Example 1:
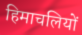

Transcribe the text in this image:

हिमाचलियों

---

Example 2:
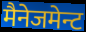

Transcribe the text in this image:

मैनेजमेन्ट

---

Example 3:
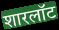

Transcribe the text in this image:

शारलॉट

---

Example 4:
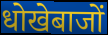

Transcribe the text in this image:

धोखेबाजों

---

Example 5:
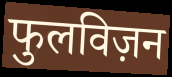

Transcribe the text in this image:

फुलविज़न